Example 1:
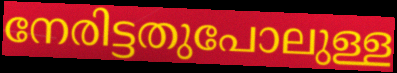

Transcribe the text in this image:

നേരിട്ടതുപോലുള്ള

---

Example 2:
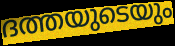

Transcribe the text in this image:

ദത്തയുടെയും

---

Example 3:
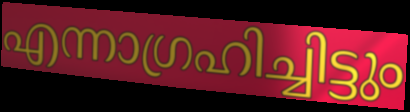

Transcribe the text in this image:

എന്നാഗ്രഹിച്ചിട്ടും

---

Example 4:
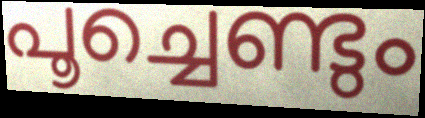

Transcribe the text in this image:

പൂച്ചെണ്ടും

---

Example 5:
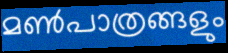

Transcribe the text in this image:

മൺപാത്രങ്ങളും